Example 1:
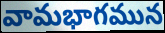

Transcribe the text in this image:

వామభాగమున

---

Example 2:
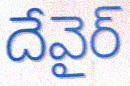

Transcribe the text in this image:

దేవైర్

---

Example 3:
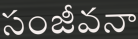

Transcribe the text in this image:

సంజీవనా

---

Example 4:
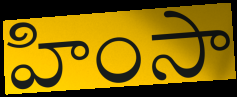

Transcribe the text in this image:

హింసా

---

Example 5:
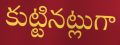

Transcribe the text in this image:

కుట్టినట్లుగా